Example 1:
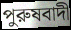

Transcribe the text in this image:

পুরুষবাদী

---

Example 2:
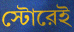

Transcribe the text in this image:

স্টোরেই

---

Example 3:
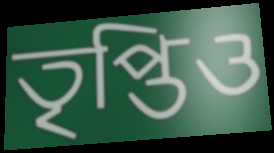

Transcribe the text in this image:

তৃপ্তিও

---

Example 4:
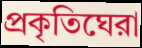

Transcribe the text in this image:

প্রকৃতিঘেরা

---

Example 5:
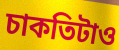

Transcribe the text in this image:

চাকতিটাও